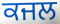
ਕਜਲ